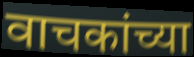
वाचकांच्या